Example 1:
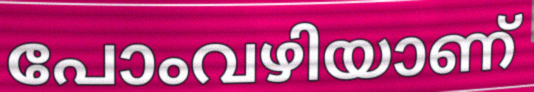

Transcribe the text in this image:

പോംവഴിയാണ്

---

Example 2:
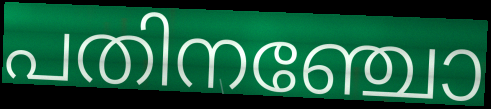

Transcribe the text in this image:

പതിനഞ്ചോ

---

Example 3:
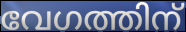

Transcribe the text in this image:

വേഗത്തിന്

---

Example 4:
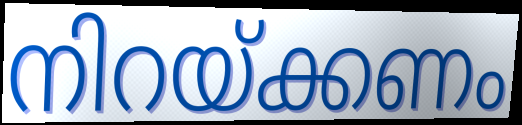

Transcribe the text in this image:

നിറയ്ക്കണം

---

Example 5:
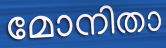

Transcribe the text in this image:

മോനിതാ